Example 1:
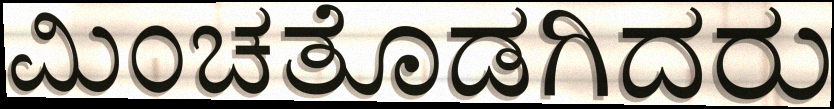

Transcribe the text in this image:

ಮಿಂಚತೊಡಗಿದರು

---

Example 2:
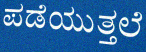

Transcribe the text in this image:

ಪಡೆಯುತ್ತಲೆ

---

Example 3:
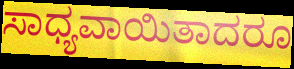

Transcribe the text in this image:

ಸಾಧ್ಯವಾಯಿತಾದರೂ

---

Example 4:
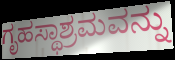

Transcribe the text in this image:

ಗೃಹಸ್ಥಾಶ್ರಮವನ್ನು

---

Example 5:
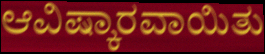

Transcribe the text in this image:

ಆವಿಷ್ಕಾರವಾಯಿತು